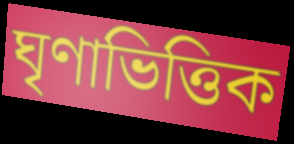
ঘৃণাভিত্তিক